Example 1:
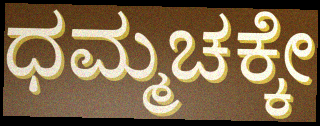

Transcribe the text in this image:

ಧಮ್ಮಚಕ್ಕೇ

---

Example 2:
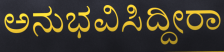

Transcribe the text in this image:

ಅನುಭವಿಸಿದ್ದೀರಾ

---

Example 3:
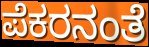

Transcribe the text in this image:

ಪೆಕರನಂತೆ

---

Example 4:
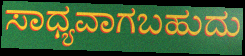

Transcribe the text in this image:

ಸಾಧ್ಯವಾಗಬಹುದು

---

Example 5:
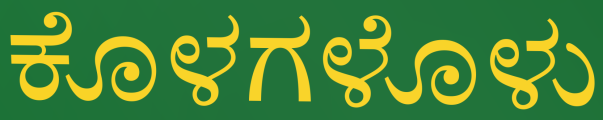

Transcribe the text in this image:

ಕೊಳಗಳೊಳು